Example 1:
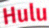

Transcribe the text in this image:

Hulu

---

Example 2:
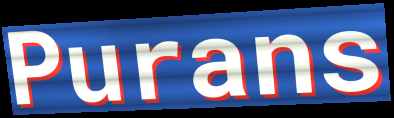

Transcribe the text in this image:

Purans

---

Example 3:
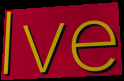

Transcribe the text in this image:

Ive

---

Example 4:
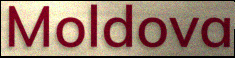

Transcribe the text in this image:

Moldova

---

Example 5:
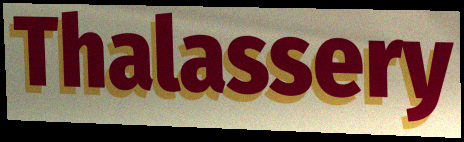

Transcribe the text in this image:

Thalassery